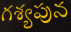
గశ్యపున